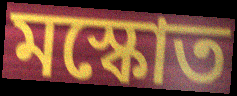
মস্কোত